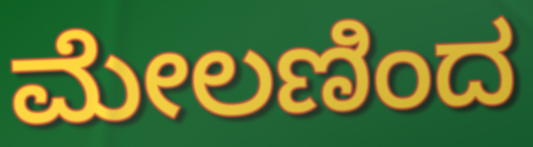
ಮೇಲಣಿಂದ